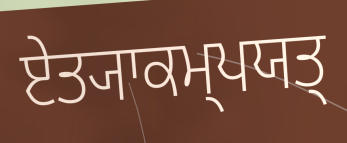
ਏਤ੍ਯਾਕਮ੍ਪਯਤ੍